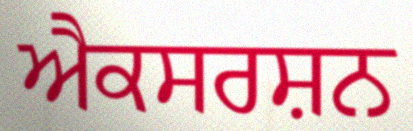
ਐਕਸਰਸ਼ਨ